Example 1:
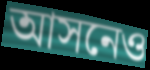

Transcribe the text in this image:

আসনেও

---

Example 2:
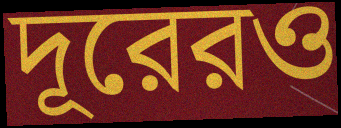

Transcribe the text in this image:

দূরেরও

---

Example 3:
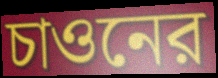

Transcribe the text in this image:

চাওনের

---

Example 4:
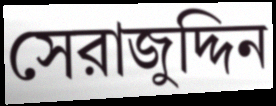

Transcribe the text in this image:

সেরাজুদ্দিন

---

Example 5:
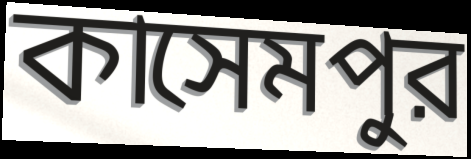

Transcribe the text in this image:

কাসেমপুর